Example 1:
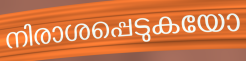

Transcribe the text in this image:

നിരാശപ്പെടുകയോ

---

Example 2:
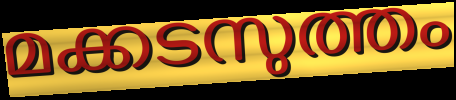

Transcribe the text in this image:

മക്കടസുത്തം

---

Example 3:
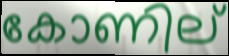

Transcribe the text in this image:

കോണില്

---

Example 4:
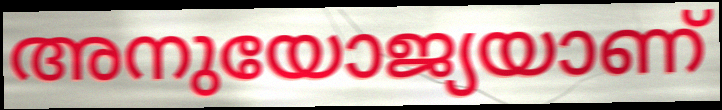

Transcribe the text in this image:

അനുയോജ്യയാണ്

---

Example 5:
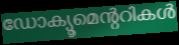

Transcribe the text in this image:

ഡോക്യൂമെന്ററികൾ